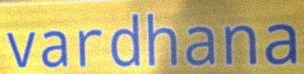
vardhana